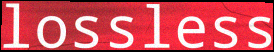
lossless